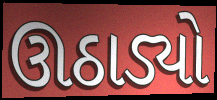
ઊઠાડ્યો